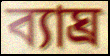
ব্যাঘ্র